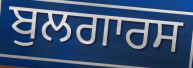
ਬੁਲਗਾਰਸ